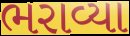
ભરાવ્યા